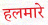
हलमारे